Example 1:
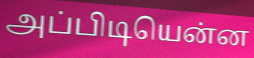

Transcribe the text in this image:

அப்பிடியென்ன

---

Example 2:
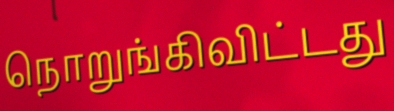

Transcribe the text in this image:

நொறுங்கிவிட்டது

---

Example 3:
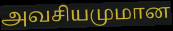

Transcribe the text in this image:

அவசியமுமான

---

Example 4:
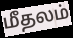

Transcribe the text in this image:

மீதலம்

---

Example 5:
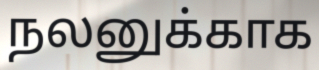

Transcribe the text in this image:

நலனுக்காக